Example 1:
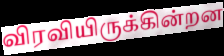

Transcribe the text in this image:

விரவியிருக்கின்றன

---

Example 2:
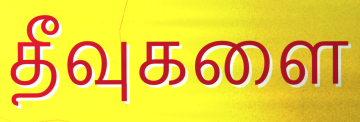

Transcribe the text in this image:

தீவுகளை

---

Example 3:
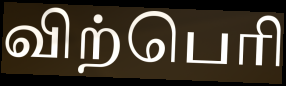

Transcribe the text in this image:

விற்பெரி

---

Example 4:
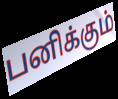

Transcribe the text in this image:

பனிக்கும்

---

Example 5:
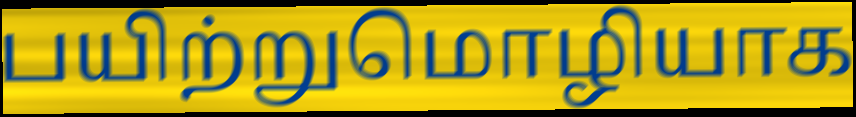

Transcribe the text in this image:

பயிற்றுமொழியாக